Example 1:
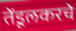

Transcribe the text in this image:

तेंडूलकरचे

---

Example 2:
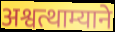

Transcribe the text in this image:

अश्वत्थाम्याने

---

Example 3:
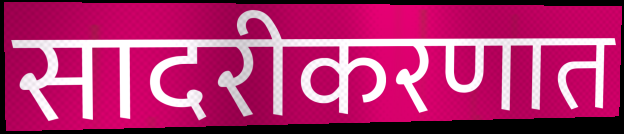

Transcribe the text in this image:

सादरीकरणात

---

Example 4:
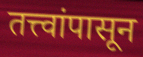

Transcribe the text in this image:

तत्त्वांपासून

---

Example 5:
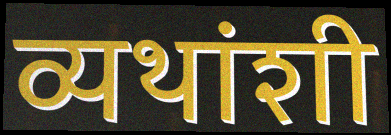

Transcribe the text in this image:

व्यथांशी